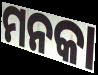
ମନକା